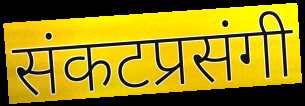
संकटप्रसंगी